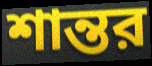
শান্তর